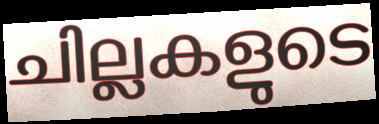
ചില്ലകളുടെ